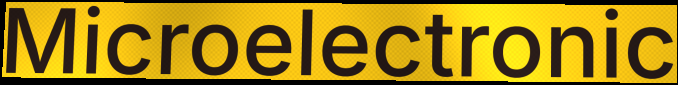
Microelectronic